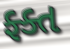
ફ્ક્ત